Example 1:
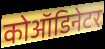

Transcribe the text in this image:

कोऑडिनेटर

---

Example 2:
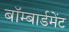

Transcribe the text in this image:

बॉम्बार्डमेंट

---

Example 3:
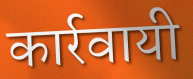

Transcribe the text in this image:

कार्रवायी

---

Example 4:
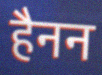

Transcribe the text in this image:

हैनन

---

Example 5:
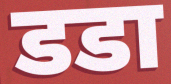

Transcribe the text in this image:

डडा